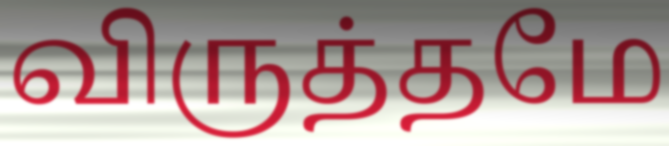
விருத்தமே